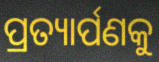
ପ୍ରତ୍ୟାର୍ପଣକୁ